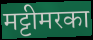
मट्टीमरका